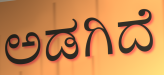
ಅಡಗಿದೆ